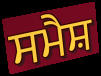
ਸਮੈਸ਼